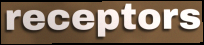
receptors